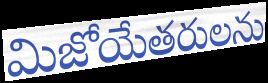
మిజోయేతరులను